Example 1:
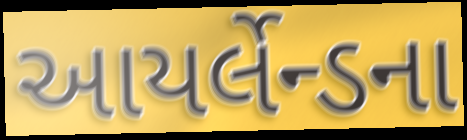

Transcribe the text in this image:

આયર્લેન્ડના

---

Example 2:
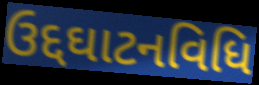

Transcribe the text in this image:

ઉદ્દઘાટનવિધિ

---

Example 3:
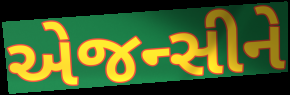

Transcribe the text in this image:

એજન્સીને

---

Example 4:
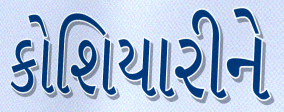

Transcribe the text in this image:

કોશિયારીને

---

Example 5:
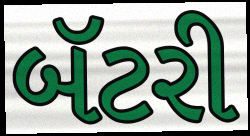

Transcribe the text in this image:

બૅટરી